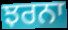
ਝਰਨਾ